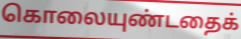
கொலையுண்டதைக்